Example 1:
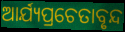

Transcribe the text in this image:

ଆର୍ଯ୍ୟପ୍ରଚେତାବୃନ୍ଦ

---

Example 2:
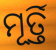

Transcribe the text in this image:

ମୂର୍ତ୍ତି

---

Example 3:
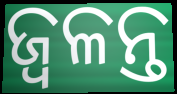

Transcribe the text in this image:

ଜ୍ବଳନ୍ତ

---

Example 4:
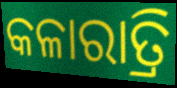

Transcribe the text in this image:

କଳାରାତ୍ରି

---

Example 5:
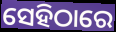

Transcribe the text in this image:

ସେହିଠାରେ